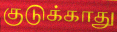
குடுக்காது